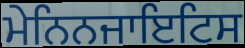
ਮੇਨਿਨਜਾਇਟਿਸ